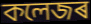
কলেজৰ